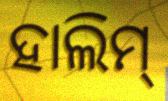
ହାଲିମ୍